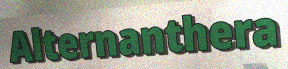
Alternanthera